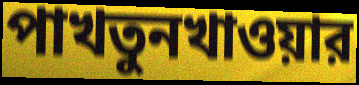
পাখতুনখাওয়ার